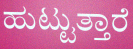
ಹುಟ್ಟುತ್ತಾರೆ